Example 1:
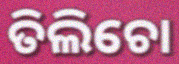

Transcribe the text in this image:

ତିଲିଚୋ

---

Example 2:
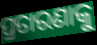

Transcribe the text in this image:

ପ୍ରତାରଣାକୁ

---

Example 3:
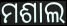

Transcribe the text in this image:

ମଶାଲ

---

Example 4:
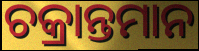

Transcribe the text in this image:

ଚକ୍ରାନ୍ତମାନ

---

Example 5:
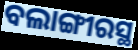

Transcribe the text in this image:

ବଲାଙ୍ଗୀରସ୍ଥ